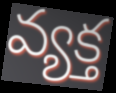
వ్యక్త